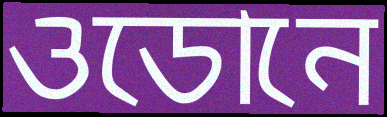
ওডোনে